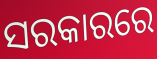
ସରକାରରେ